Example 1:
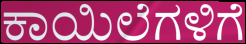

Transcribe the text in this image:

ಕಾಯಿಲೆಗಳಿಗೆ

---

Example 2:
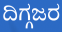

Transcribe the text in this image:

ದಿಗ್ಗಜರ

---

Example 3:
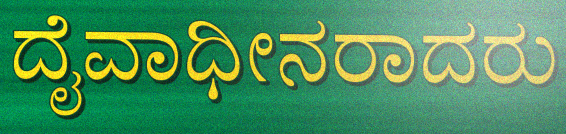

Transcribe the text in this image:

ದೈವಾಧೀನರಾದರು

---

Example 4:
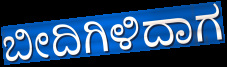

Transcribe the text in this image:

ಬೀದಿಗಿಳಿದಾಗ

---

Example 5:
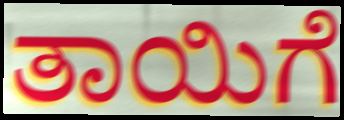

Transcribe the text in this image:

ತಾಯಿಗೆ